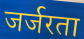
जर्जरता